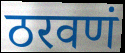
ठरवणं